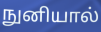
நுனியால்